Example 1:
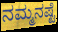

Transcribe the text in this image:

ನಮ್ಮನಷ್ಟೆ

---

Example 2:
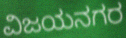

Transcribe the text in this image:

ವಿಜಯನಗರ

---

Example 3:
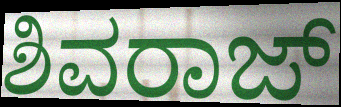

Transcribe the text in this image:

ಶಿವರಾಜ್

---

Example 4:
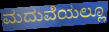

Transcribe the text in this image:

ಮದುವೆಯಲ್ಲೂ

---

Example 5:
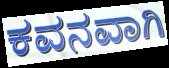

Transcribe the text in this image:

ಕವನವಾಗಿ